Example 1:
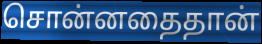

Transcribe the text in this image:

சொன்னதைதான்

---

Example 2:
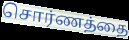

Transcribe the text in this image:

சொர்ணத்தை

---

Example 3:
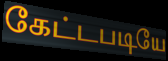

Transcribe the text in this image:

கேட்டபடியே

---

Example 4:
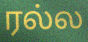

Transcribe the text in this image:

ரல்ல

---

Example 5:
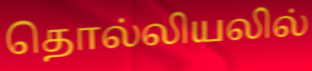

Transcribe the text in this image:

தொல்லியலில்